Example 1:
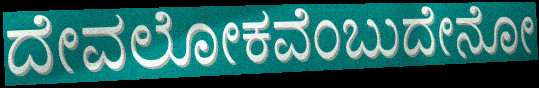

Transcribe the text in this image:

ದೇವಲೋಕವೆಂಬುದೇನೋ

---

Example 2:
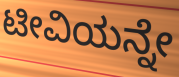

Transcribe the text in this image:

ಟೀವಿಯನ್ನೇ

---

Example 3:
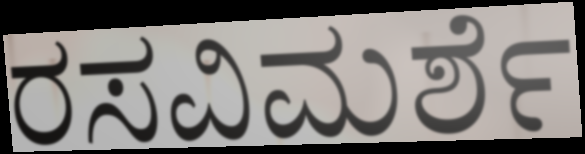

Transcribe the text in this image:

ರಸವಿಮರ್ಶೆ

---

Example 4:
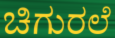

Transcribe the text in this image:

ಚಿಗುರಲೆ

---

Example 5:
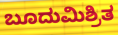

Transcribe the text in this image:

ಬೂದುಮಿಶ್ರಿತ